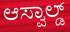
ಆಸ್ವಾಲ್ಡ್